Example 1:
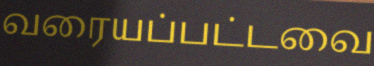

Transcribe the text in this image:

வரையப்பட்டவை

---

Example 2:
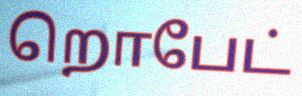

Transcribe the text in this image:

றொபேட்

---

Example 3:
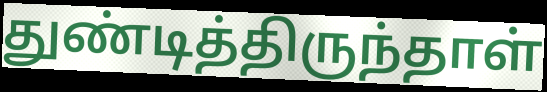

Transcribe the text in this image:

துண்டித்திருந்தாள்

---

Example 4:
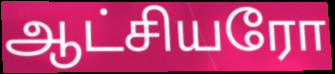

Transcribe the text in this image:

ஆட்சியரோ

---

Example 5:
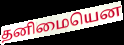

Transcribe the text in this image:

தனிமையென